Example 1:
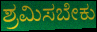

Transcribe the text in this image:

ಶ್ರಮಿಸಬೇಕು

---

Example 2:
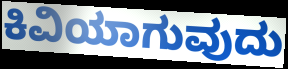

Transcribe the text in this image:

ಕಿವಿಯಾಗುವುದು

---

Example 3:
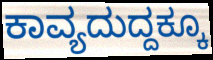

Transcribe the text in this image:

ಕಾವ್ಯದುದ್ದಕ್ಕೂ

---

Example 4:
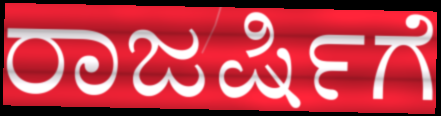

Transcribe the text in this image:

ರಾಜರ್ಷಿಗೆ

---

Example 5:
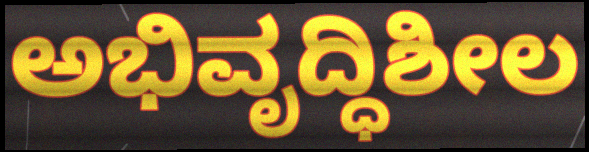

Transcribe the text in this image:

ಅಭಿವೃದ್ಧಿಶೀಲ